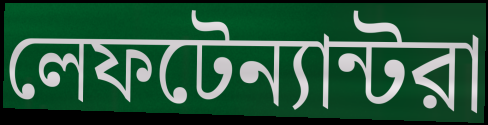
লেফটেন্যান্টরা